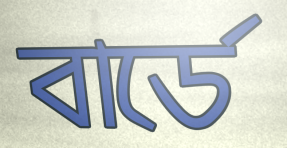
বার্ডে